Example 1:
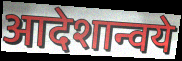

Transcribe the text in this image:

आदेशान्वये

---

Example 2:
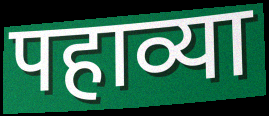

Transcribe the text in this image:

पहाव्या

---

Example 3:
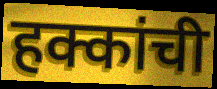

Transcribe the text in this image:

हक्कांची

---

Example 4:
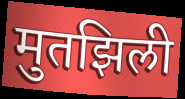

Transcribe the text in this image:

मुतझिली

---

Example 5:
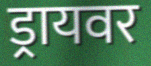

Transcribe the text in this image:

ड्रायवर